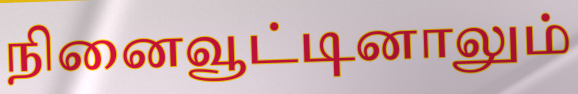
நினைவூட்டினாலும்